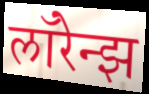
लॉरेन्झ